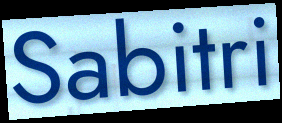
Sabitri